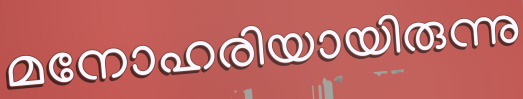
മനോഹരിയായിരുന്നു